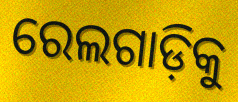
ରେଲଗାଡ଼ିକୁ